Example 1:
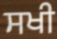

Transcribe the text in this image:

ਸਖੀ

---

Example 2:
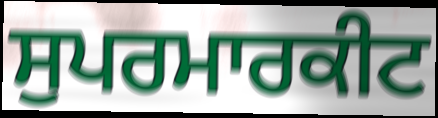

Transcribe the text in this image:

ਸੁਪਰਮਾਰਕੀਟ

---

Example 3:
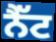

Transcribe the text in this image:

ਨੈੱਟ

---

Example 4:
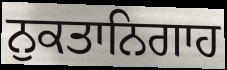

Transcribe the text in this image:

ਨੁਕਤਾਨਿਗਾਹ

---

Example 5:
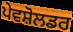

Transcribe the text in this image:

ਪੇਵਸ਼ੋਲਡਰ